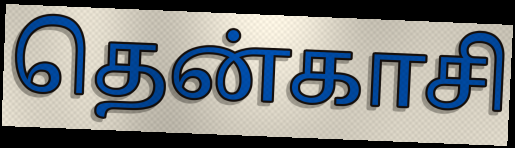
தென்காசி